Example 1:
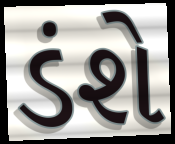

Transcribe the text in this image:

ડંશે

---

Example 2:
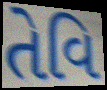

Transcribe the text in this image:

તેવિ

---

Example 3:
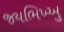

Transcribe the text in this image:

જ્યભિખ્ખુ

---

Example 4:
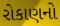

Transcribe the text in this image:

રોકાણનો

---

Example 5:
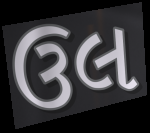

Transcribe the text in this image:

ઉલ